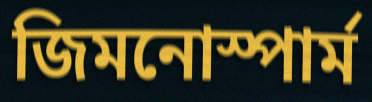
জিমনোস্পার্ম